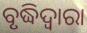
ବୃଦ୍ଧିଦ୍ୱାରା